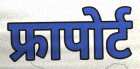
फ्रापोर्ट